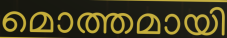
മൊത്തമായി